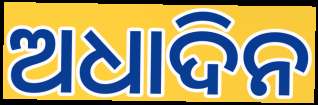
ଅଧାଦିନ